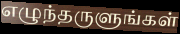
எழுந்தருளுங்கள்